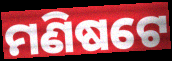
ମଣିଷଟେ